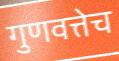
गुणवत्तेच